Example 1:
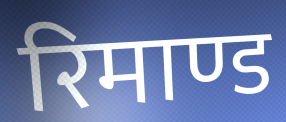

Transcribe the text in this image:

रिमाण्ड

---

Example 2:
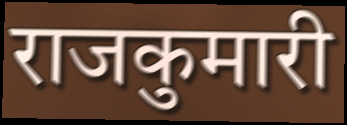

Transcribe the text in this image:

राजकुमारी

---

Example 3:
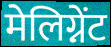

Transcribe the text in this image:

मेलिग्नेंट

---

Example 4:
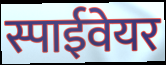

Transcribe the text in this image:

स्पाईवेयर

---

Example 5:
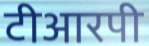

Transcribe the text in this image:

टीआरपी